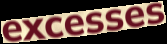
excesses